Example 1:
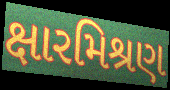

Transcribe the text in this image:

ક્ષારમિશ્રણ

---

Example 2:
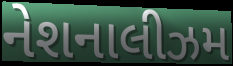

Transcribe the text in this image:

નેશનાલીઝમ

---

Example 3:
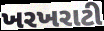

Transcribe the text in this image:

ખરખરાટી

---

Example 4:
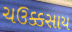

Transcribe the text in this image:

ચઉક્કસાય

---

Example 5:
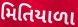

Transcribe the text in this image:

મિતિયાળા